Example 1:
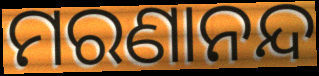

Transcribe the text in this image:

ମରଣାନନ୍ଦ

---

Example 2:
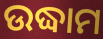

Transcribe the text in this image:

ଉଦ୍ଧାମ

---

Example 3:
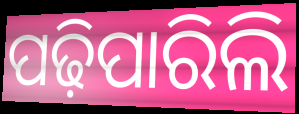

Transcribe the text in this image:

ପଢ଼ିପାରିଲି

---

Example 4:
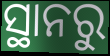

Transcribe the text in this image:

ସ୍ଥାନରୁ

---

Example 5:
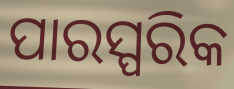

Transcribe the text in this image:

ପାରସ୍ପରିକ